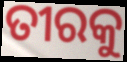
ତୀରକୁ